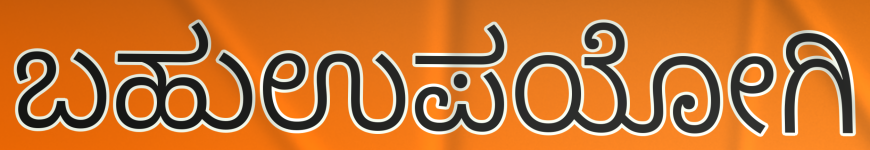
ಬಹುಉಪಯೋಗಿ